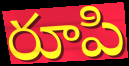
రూపి